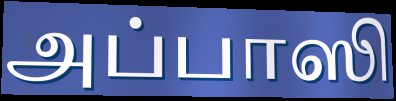
அப்பாஸி